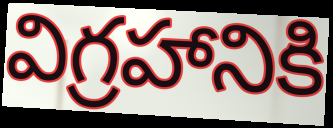
విగ్రహానికి